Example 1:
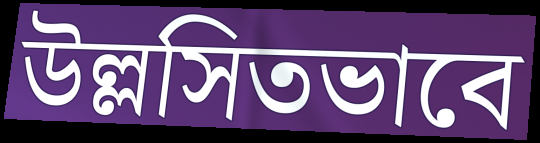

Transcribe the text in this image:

উল্লসিতভাবে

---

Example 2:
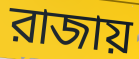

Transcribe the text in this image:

রাজায়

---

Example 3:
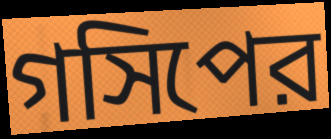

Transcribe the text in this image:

গসিপের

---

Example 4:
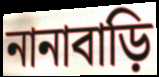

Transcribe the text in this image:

নানাবাড়ি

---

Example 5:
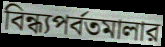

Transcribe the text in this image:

বিন্ধ্যপর্বতমালার